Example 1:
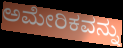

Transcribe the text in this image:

ಅಮೇರಿಕವನ್ನು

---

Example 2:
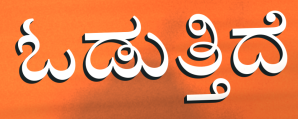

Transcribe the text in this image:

ಓಡುತ್ತಿದೆ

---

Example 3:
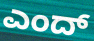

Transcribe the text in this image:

ಎಂದ್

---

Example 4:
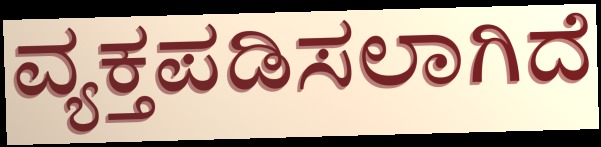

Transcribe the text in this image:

ವ್ಯಕ್ತಪಡಿಸಲಾಗಿದೆ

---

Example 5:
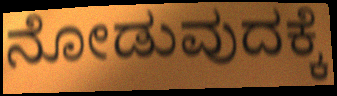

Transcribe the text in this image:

ನೋಡುವುದಕ್ಕೆ